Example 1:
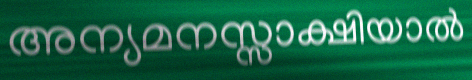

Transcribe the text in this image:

അന്യമനസ്സാക്ഷിയാൽ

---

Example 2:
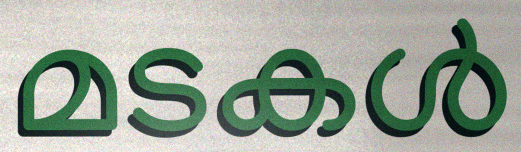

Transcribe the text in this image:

മടകൾ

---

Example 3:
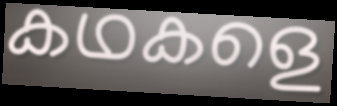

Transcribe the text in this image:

കഥകളെ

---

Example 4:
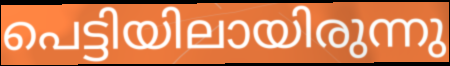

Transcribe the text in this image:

പെട്ടിയിലായിരുന്നു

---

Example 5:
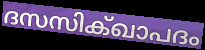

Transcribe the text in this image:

ദസസിക്ഖാപദം